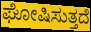
ಘೋಷಿಸುತ್ತದೆ